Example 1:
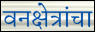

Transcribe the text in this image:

वनक्षेत्रांचा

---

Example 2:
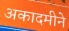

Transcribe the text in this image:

अकादमीने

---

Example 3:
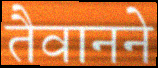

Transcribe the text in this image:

तैवानने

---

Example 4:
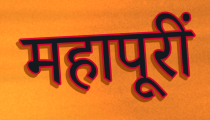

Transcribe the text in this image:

महापूरीं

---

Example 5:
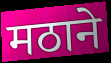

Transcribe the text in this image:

मठाने